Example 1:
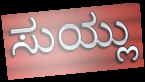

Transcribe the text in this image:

ಸುಯ್ಲು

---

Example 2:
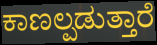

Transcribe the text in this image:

ಕಾಣಲ್ಪಡುತ್ತಾರೆ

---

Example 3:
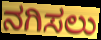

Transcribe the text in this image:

ನಗಿಸಲು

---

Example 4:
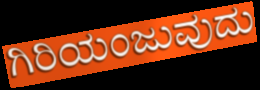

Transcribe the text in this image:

ಗಿರಿಯಂಜುವುದು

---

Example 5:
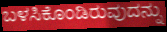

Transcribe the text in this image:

ಬಳಸಿಕೊಂಡಿರುವುದನ್ನು